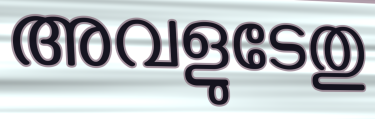
അവളുടേതു